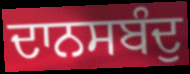
ਦਾਨਸਬੰਦੁ